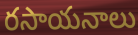
రసాయనాలు